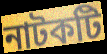
নাটকটি